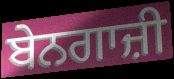
ਬੇਨਗਾਜ਼ੀ